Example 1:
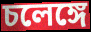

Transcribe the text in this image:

চলেঙ্গে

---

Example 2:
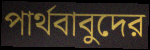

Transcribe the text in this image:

পার্থবাবুদের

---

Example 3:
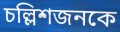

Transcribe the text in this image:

চল্লিশজনকে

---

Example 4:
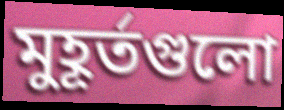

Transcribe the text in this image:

মুহূর্তগুলো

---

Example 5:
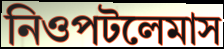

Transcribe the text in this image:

নিওপটলেমাস